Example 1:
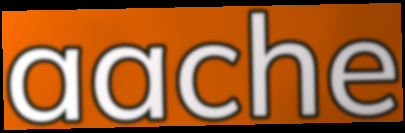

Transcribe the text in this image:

aache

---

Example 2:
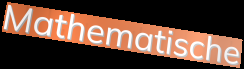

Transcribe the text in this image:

Mathematische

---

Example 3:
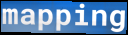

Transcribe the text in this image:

mapping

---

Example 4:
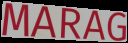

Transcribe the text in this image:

MARAG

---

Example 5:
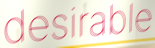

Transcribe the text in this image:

desirable